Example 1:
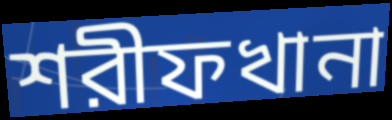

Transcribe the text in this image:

শরীফখানা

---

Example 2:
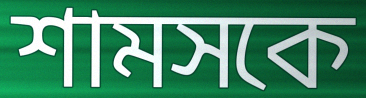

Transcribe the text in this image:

শামসকে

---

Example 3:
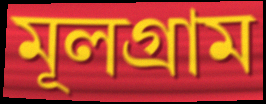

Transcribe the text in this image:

মূলগ্রাম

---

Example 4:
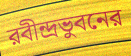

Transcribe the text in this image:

রবীন্দ্রভুবনের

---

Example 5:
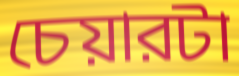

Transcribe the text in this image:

চেয়ারটা